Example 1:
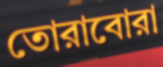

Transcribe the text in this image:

তোরাবোরা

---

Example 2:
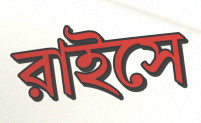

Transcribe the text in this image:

রাইসে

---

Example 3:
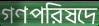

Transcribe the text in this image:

গণপরিষদে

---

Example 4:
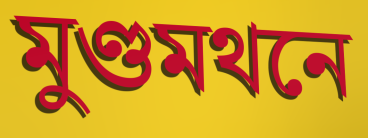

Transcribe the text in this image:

মুণ্ডমথনে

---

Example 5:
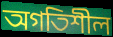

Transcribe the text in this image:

অগতিশীল